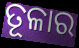
ତୂଳାର